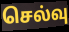
செல்வு